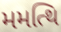
મમત્થિ